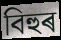
বিহুৰ